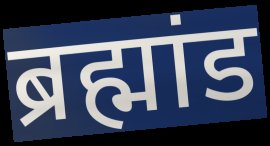
ब्रह्मांड